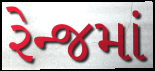
રેન્જમાં